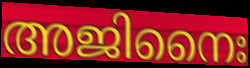
അജിനൈഃ